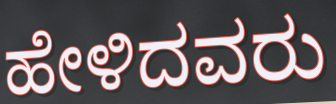
ಹೇಳಿದವರು